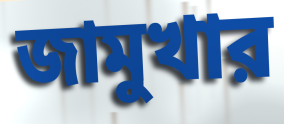
জামুখার